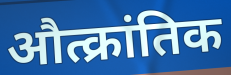
औत्क्रांतिक